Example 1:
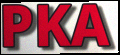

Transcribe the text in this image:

PKA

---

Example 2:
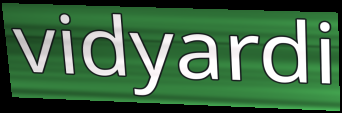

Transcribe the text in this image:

vidyardi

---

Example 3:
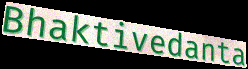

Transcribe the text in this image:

Bhaktivedanta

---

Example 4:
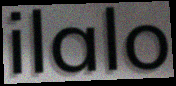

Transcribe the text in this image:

ilalo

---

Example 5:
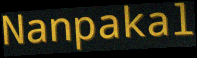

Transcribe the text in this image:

Nanpakal